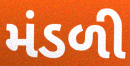
મંડળી